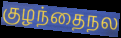
குழந்தைநல